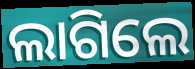
ଲାଗିଲେ